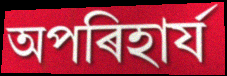
অপৰিহাৰ্য